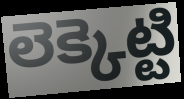
లెక్కెట్టి